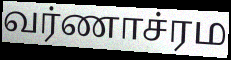
வர்ணாச்ரம